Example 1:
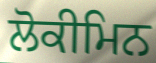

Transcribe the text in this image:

ਲੋਕੀਮਿਨ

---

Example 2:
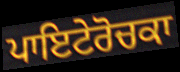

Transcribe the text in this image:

ਪਾਇਟੇਰੋਚਕਾ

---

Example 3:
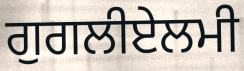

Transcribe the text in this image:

ਗੁਗਲੀਏਲਮੀ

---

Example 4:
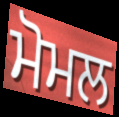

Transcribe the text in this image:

ਮੋਮਲ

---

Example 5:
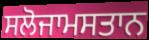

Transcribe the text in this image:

ਸਲੋਜਾਮਸਤਾਨ